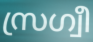
സ്രഗ്വീ